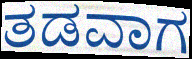
ತಡವಾಗ